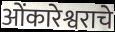
ओंकारेश्वराचे